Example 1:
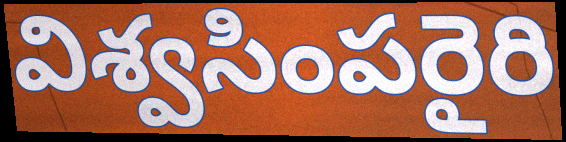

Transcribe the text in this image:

విశ్వసింపరైరి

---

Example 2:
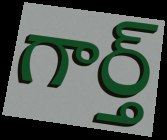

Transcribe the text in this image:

గార్త్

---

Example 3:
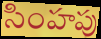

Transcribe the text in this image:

సింహపు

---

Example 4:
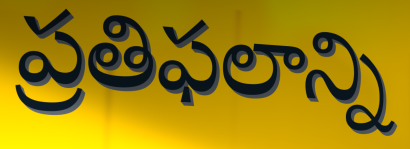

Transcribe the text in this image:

ప్రతిఫలాన్ని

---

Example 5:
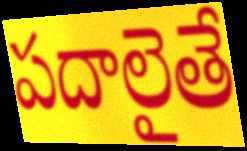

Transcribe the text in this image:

పదాలైతే